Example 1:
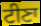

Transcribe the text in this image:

ਟੀਣਾ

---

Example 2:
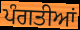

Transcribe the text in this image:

ਪੰਗਤੀਆਂ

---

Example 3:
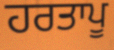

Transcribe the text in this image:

ਹਰਤਾਪੂ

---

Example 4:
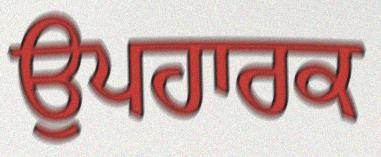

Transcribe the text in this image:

ਉਪਹਾਰਕ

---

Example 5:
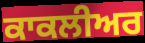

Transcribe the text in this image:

ਕਾਕਲੀਅਰ